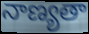
నాణ్యతా